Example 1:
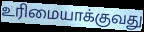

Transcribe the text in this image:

உரிமையாக்குவது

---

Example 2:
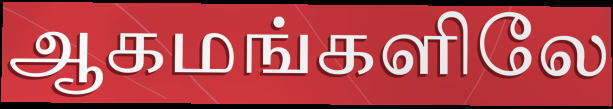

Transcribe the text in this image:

ஆகமங்களிலே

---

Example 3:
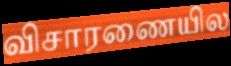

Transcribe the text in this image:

விசாரணையில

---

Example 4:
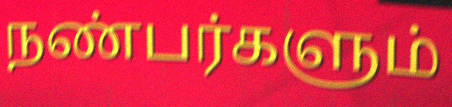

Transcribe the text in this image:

நண்பர்களும்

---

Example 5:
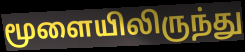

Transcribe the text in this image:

மூளையிலிருந்து